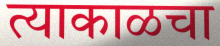
त्याकाळचा